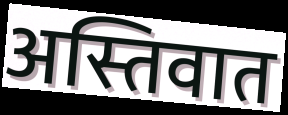
अस्तिवात